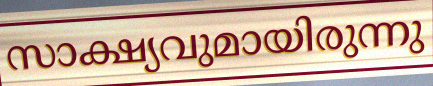
സാക്ഷ്യവുമായിരുന്നു